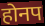
होनप